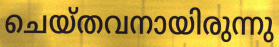
ചെയ്തവനായിരുന്നു